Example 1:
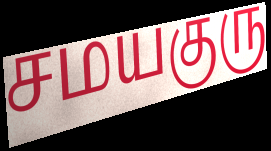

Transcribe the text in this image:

சமயகுரு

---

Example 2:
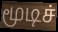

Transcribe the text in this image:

மூடிச்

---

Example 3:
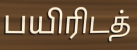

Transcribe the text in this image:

பயிரிடத்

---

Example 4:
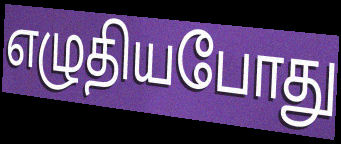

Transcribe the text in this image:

எழுதியபோது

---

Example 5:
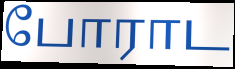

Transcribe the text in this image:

போராட